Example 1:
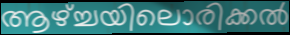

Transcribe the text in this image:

ആഴ്ച്ചയിലൊരിക്കൽ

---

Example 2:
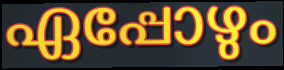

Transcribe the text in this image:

ഏപ്പോഴും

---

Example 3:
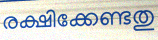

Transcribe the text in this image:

രക്ഷിക്കേണ്ടതു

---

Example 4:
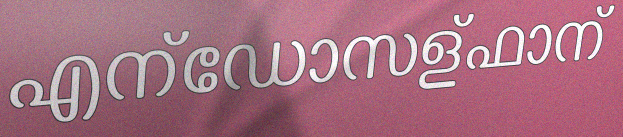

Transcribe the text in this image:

എന്ഡോസള്ഫാന്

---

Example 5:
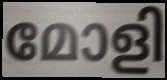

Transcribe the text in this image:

മോളി